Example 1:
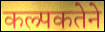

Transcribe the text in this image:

कल्पकतेने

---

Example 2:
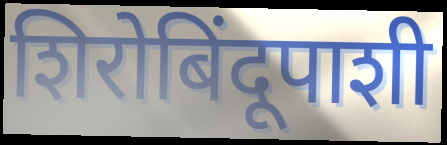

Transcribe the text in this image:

शिरोबिंदूपाशी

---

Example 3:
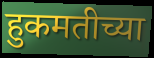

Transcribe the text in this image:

हुकमतीच्या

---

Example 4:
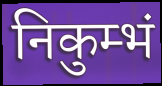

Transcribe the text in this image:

निकुम्भं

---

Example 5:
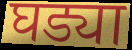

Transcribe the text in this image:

घड्या